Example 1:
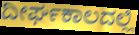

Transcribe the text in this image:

ದೀರ್ಘಕಾಲದಲ್ಲಿ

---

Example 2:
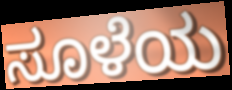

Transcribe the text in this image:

ಸೂಳೆಯ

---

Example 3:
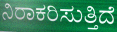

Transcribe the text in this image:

ನಿರಾಕರಿಸುತ್ತಿದೆ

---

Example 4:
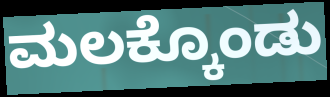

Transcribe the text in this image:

ಮಲಕ್ಕೊಂಡು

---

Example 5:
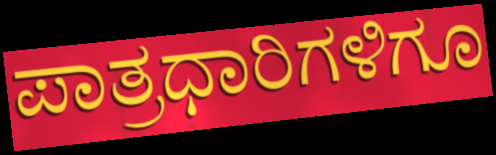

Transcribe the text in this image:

ಪಾತ್ರಧಾರಿಗಳಿಗೂ